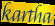
kartha